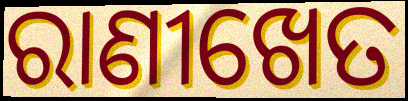
ରାଣୀଖେତ